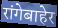
रांगेबाहेर